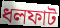
ধলফাট